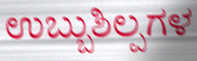
ಉಬ್ಬುಶಿಲ್ಪಗಳ